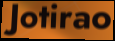
Jotirao